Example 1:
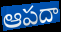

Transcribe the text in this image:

ఆపదా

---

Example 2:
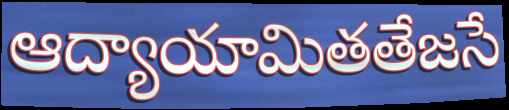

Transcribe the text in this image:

ఆద్యాయామితతేజసే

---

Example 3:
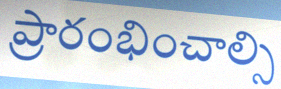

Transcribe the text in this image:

ప్రారంభించాల్సి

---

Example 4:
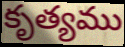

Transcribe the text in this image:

కృత్యము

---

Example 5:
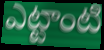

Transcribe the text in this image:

ఎట్టాంటి